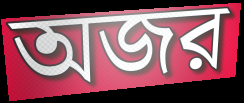
অজর